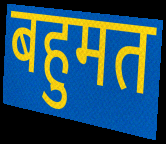
बहुमत